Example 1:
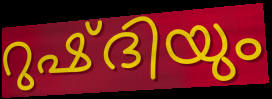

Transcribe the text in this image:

റുഷ്ദിയും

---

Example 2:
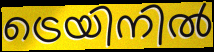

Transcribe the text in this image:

ട്രെയിനിൽ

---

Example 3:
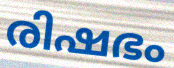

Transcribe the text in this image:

രിഷഭം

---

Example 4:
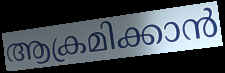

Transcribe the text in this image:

ആക്രമിക്കാൻ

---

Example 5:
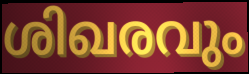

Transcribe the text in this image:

ശിഖരവും